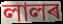
লালৰ